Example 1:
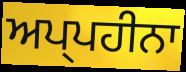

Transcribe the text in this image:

ਅਪ੍ਪਹੀਨਾ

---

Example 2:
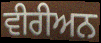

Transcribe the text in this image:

ਵੀਰੀਅਨ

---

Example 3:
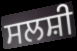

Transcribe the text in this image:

ਸਲਸ਼ੀ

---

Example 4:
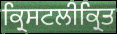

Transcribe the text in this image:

ਕ੍ਰਿਸਟਲੀਕ੍ਰਿਤ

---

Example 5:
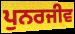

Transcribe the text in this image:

ਪੁਨਰਜੀਵ